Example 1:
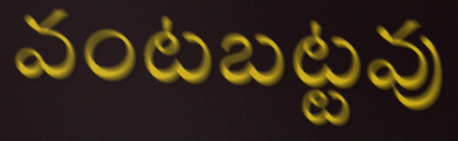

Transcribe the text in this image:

వంటబట్టవు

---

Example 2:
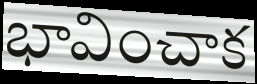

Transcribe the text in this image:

భావించాక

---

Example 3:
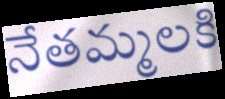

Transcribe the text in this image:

నేతమ్మలకి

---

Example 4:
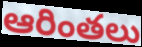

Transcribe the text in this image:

ఆరింతలు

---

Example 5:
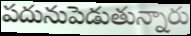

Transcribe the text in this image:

పదునుపెడుతున్నారు